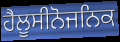
ਹੈਲੂਸੀਨੋਜਨਿਕ